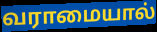
வராமையால்